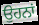
ਉਹਨਾਂ